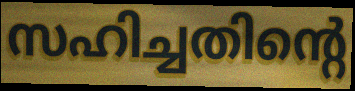
സഹിച്ചതിന്റെ